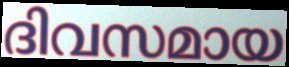
ദിവസമായ